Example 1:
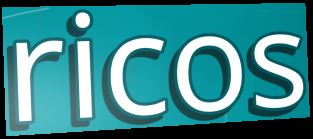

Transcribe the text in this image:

ricos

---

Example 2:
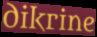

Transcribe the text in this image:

dikrine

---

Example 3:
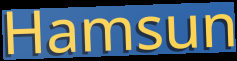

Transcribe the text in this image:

Hamsun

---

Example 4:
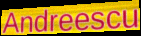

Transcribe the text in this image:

Andreescu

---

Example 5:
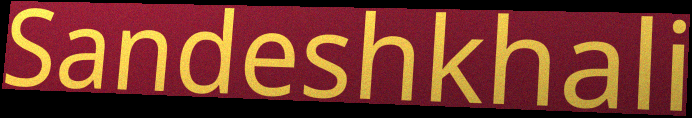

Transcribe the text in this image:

Sandeshkhali